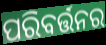
ପରିବର୍ତ୍ତନର